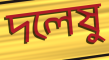
দলেষু